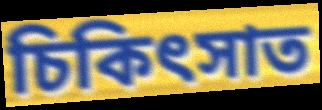
চিকিৎসাত